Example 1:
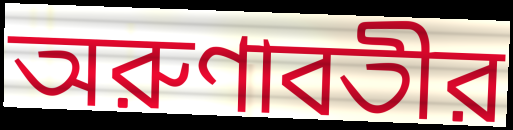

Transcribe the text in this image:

অরুণাবতীর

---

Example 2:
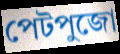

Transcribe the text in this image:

পেটপুজো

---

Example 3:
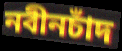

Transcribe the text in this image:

নবীনচাঁদ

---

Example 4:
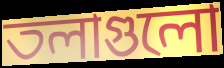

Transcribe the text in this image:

তলাগুলো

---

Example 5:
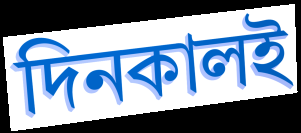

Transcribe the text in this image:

দিনকালই